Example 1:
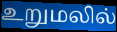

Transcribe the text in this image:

உறுமலில்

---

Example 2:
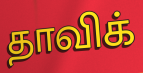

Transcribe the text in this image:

தாவிக்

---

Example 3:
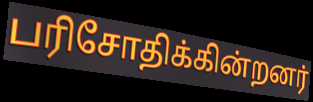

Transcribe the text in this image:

பரிசோதிக்கின்றனர்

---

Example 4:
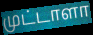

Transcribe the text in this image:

முட்டாளா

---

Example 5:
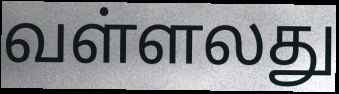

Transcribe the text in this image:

வள்ளலது